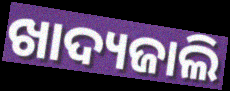
ଖାଦ୍ୟଜାଲି